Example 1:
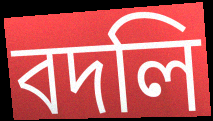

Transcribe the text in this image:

বদলি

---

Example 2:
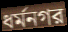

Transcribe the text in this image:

ধর্মনগর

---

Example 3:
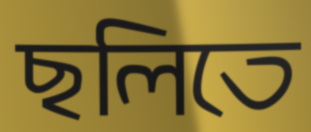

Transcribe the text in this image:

ছলিতে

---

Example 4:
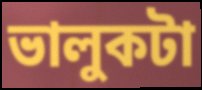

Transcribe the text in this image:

ভালুকটা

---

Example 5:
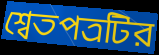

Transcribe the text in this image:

শ্বেতপত্রটির